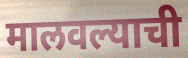
मालवल्याची